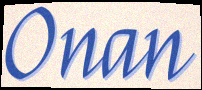
Onan